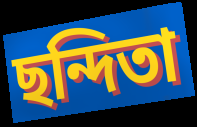
ছন্দিতা